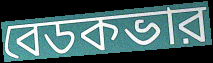
বেডকভার